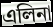
এলিনা